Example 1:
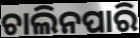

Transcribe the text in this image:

ଚାଲିନପାରି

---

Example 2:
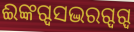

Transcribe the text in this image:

ଈଙ୍କଗ୍ଦସଦ୍ଭରଗ୍ଦଗ୍ଦ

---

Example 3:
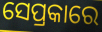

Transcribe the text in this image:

ସେପ୍ରକାରେ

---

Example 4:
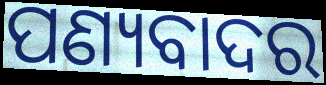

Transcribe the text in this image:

ପଣ୍ୟବାଦର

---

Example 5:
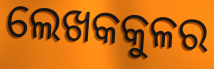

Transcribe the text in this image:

ଲେଖକକୁଳର